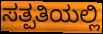
ಸತ್ಪತಿಯಲ್ಲಿ